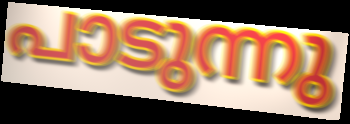
പാടുന്നു